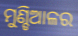
ମୁଣ୍ଡିଆଳର